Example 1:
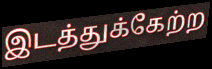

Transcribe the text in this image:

இடத்துக்கேற்ற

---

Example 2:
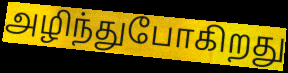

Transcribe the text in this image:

அழிந்துபோகிறது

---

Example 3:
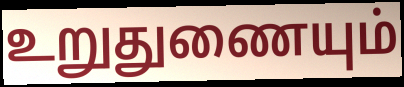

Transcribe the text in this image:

உறுதுணையும்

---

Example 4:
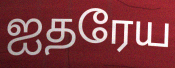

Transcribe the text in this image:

ஐதரேய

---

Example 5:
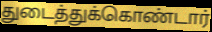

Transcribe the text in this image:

துடைத்துக்கொண்டார்